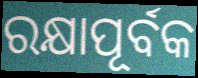
ରକ୍ଷାପୂର୍ବକ